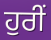
ਹੁਰੀਂ